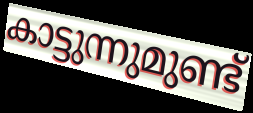
കാട്ടുന്നുമുണ്ട്